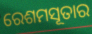
ରେଶମସୂତାର